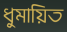
ধুমায়িত